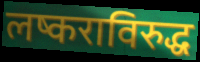
लष्कराविरुद्ध